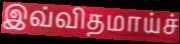
இவ்விதமாய்ச்